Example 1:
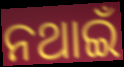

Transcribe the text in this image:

ନଥାଇଁ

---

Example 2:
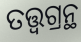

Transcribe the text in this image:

ତତ୍ତ୍ୱଗ୍ରନ୍ଥ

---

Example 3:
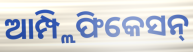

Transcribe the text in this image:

ଆମ୍ପ୍ଲିଫିକେସନ୍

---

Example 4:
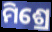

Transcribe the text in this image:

ମିଶ୍ରେ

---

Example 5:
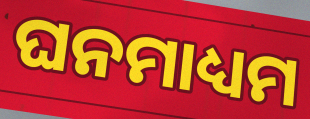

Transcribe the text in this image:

ଘନମାଧ୍ୟମ